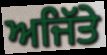
ਅਜਿੱਤੇ